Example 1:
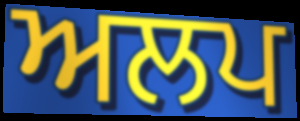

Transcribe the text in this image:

ਅਲਪ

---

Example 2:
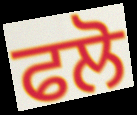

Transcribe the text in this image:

ਫਲੋ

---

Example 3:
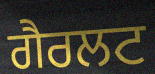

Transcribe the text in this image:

ਗੈਰਲਟ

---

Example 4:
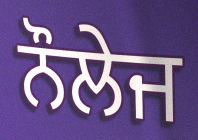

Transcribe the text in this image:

ਨੌਲੇਜ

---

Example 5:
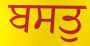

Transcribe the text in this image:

ਬਸਤੁ